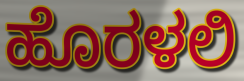
ಹೊರಳಲಿ